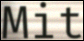
Mit